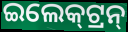
ଇଲେକ୍‌ଟ୍ରନ୍